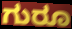
ಗುರೂ